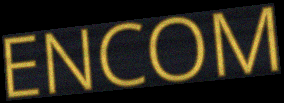
ENCOM